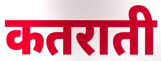
कतराती